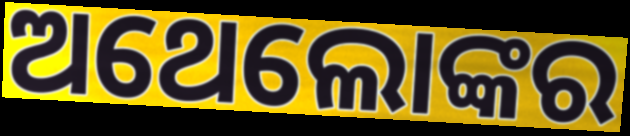
ଅଥେଲୋଙ୍କର